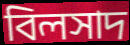
বিলসাদ